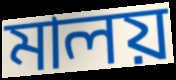
মালয়